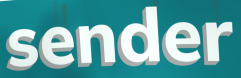
sender